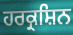
ਹਰਕ੍ਰਸ਼ਿਨ